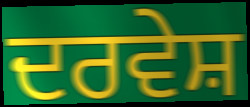
ਦਰਵੇਸ਼